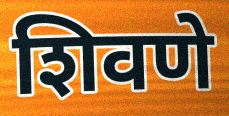
शिवणे